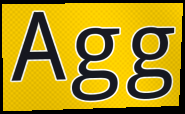
Agg